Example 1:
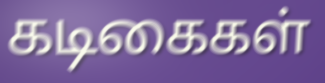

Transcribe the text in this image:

கடிகைகள்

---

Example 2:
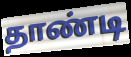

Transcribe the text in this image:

தாண்டி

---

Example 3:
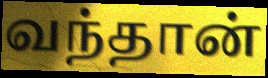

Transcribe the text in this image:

வந்தான்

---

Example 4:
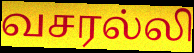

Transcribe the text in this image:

வசரல்லி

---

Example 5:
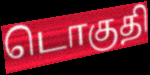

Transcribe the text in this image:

டொகுதி